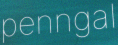
penngal